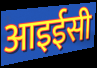
आइईसी